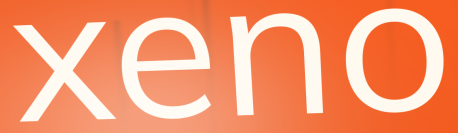
xeno